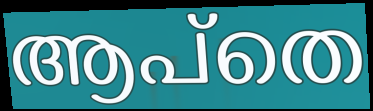
ആപ്‌തെ